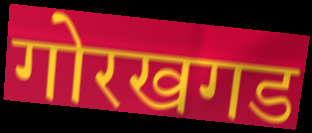
गोरखगड